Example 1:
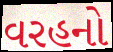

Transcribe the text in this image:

વરહનો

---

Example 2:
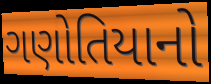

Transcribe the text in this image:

ગણોતિયાનો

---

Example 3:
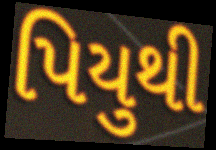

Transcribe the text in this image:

પિયુથી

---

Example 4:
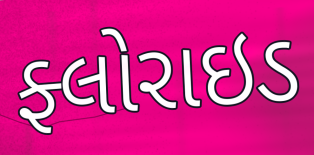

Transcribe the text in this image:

ફ્લોરાઇડ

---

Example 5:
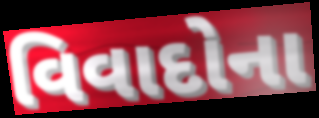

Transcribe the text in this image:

વિવાદોના